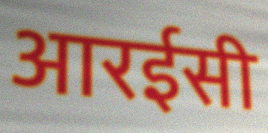
आरईसी